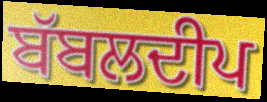
ਬੱਬਲਦੀਪ